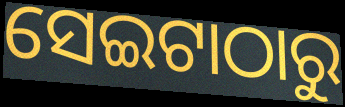
ସେଇଟାଠାରୁ